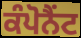
ਕੰਪੋਨੈਂਟ